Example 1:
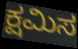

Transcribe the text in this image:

ಕ್ಷಮಿಸ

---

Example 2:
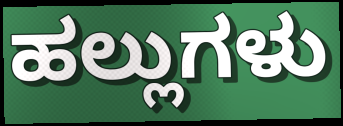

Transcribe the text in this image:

ಹಲ್ಲುಗಳು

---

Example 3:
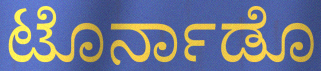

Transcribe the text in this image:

ಟೊರ್ನಾಡೊ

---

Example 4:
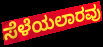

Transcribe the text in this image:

ಸೆಳೆಯಲಾರವು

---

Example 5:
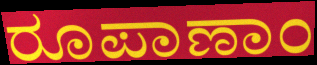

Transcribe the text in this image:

ರೂಪಾಣಾಂ